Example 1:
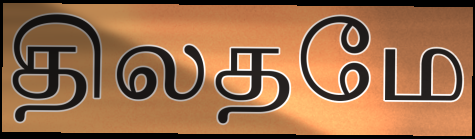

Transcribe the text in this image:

திலதமே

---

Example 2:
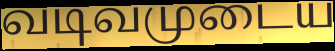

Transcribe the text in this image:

வடிவமுடைய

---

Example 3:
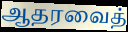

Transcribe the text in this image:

ஆதரவைத்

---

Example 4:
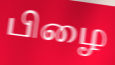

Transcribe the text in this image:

பிழை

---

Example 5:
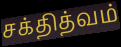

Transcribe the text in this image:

சக்தித்வம்